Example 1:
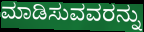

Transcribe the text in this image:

ಮಾಡಿಸುವವರನ್ನು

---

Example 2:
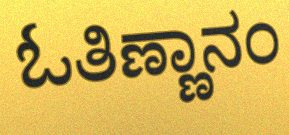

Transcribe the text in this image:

ಓತಿಣ್ಣಾನಂ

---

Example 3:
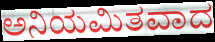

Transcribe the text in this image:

ಅನಿಯಮಿತವಾದ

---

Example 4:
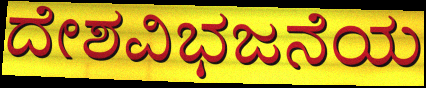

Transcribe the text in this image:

ದೇಶವಿಭಜನೆಯ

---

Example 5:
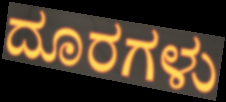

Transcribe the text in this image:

ದೂರಗಳು